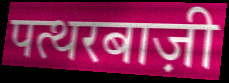
पत्थरबाज़ी